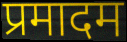
प्रमादम